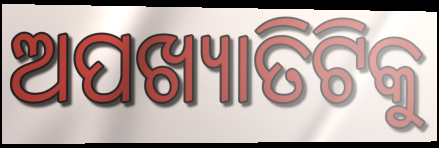
ଅପଖ୍ୟାତିଟିକୁ